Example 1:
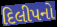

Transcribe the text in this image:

દિલીપનો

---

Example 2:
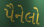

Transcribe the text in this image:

પૈનેલો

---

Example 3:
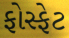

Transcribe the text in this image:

ફોસ્ફેટ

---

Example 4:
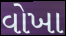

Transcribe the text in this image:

વોખા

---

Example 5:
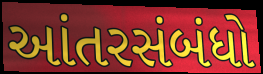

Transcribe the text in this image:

આંતરસંબંધો